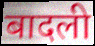
बादली